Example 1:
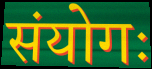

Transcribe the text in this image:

संयोगः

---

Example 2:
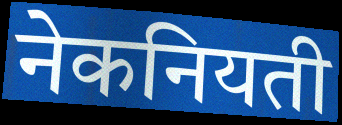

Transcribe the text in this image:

नेकनियती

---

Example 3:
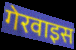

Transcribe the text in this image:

गेरवाइस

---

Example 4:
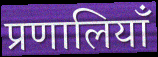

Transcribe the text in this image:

प्रणालियाँ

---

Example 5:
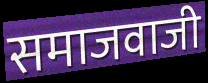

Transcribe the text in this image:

समाजवाजी